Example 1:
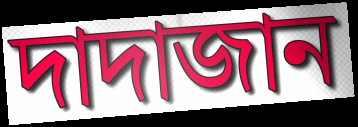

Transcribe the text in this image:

দাদাজান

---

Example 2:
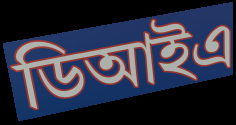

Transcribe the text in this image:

ডিআইএ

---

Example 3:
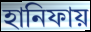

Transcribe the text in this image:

হানিফায়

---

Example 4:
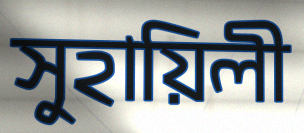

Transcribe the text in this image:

সুহায়িলী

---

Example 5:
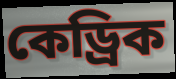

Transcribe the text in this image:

কেড্রিক